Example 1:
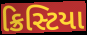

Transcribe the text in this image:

ક્રિસ્ટિયા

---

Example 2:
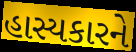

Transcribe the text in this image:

હાસ્યકારને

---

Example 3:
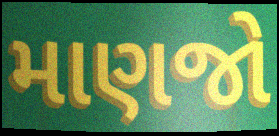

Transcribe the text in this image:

માણજો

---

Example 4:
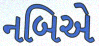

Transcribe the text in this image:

નબિએ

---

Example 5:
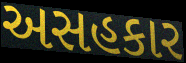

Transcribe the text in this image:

અસહકાર